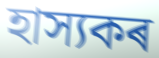
হাস্যকৰ